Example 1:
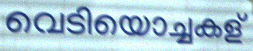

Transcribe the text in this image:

വെടിയൊച്ചകള്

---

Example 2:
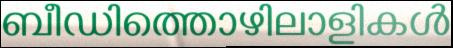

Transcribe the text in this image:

ബീഡിത്തൊഴിലാളികൾ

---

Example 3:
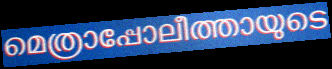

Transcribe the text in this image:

മെത്രാപ്പോലീത്തായുടെ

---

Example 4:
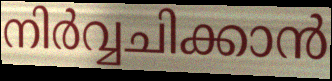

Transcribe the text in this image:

നിർവ്വചിക്കാൻ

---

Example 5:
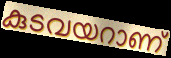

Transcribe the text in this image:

കുടവയറാണ്